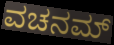
ವಚನಮ್